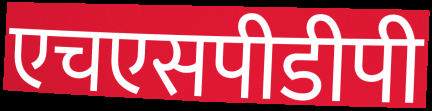
एचएसपीडीपी